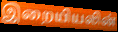
இறையியலின்